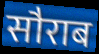
सौराब